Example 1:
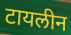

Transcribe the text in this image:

टायलीन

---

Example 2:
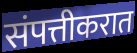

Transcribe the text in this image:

संपत्तीकरात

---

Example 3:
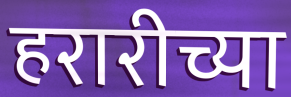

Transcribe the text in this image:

हरारीच्या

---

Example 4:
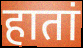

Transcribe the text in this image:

हातां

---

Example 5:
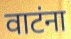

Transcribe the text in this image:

वाटंना